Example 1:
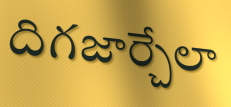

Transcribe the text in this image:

దిగజార్చేలా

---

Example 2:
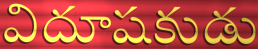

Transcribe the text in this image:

విదూషకుడు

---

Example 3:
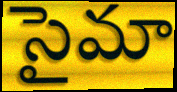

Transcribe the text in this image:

సైమా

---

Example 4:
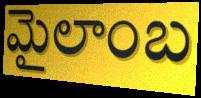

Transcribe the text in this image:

మైలాంబ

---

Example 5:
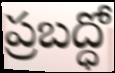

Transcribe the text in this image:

ప్రబద్ధో